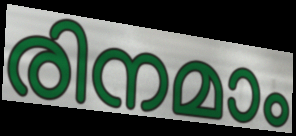
രിനമാം